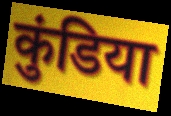
कुंडिया